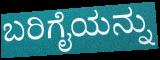
ಬರಿಗೈಯನ್ನು